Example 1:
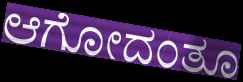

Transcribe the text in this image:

ಆಗೋದಂತೂ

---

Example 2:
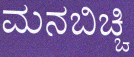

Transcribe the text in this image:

ಮನಬಿಚ್ಚಿ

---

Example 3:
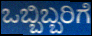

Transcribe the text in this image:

ಒಬ್ಬಿಬ್ಬರಿಗೆ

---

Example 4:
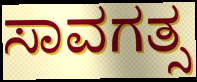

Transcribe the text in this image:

ಸಾವಗತ್ಸ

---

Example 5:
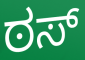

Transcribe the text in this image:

ಠಸ್